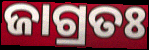
ଜାଗ୍ରତଃ